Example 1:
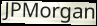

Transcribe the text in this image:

JPMorgan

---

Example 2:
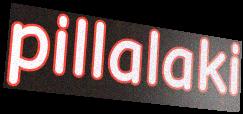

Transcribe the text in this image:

pillalaki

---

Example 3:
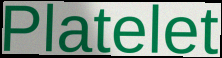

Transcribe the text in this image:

Platelet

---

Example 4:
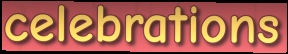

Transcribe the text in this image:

celebrations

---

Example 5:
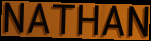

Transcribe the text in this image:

NATHAN